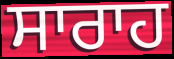
ਸਾਰਾਹ